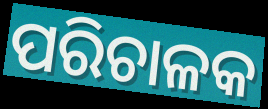
ପରିଚାଳକ